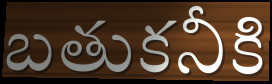
బతుకనీకి